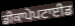
ਡੀਕਾਪੇਪਟਾਈਡ